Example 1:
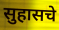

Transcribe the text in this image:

सुहासचे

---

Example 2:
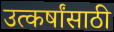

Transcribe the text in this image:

उत्कर्षांसाठी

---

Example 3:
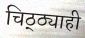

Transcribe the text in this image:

चिठ्ठ्याही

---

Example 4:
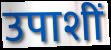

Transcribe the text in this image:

उपाशीं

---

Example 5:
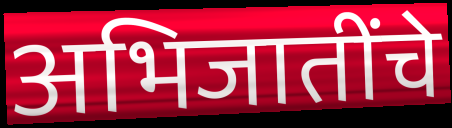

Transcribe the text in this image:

अभिजातींचे